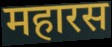
महारस